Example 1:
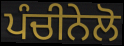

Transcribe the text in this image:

ਪੰਚੀਨੇਲੋ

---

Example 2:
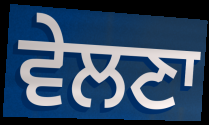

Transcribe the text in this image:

ਵੇਲਣਾ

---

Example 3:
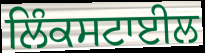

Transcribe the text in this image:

ਲਿੰਕਸਟਾਈਲ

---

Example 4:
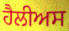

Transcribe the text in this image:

ਹੈਲੀਅਸ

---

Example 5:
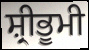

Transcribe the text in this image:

ਸ਼੍ਰੀਭੂਮੀ